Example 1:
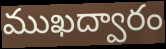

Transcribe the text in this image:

ముఖద్వారం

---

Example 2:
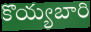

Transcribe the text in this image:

కొయ్యబారి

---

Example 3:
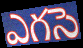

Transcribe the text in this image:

ఎగసె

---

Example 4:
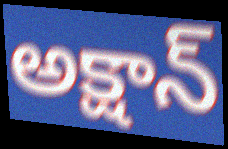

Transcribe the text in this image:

అక్షాన్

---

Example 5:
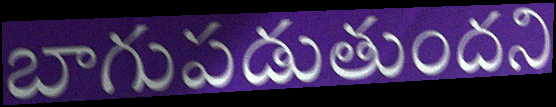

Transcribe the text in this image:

బాగుపడుతుందని